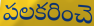
పలకరించె